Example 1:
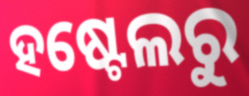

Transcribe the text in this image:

ହଷ୍ଟେଲରୁ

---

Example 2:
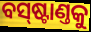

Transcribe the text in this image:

ବସ୍‌ଷ୍ଟାଣ୍ତକୁ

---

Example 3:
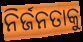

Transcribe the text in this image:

ନିର୍ଜନତାକୁ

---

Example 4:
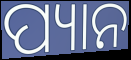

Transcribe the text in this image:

ପ୍ୟାନ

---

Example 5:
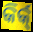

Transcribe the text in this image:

କିର୍କ୍